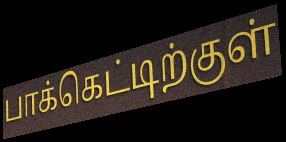
பாக்கெட்டிற்குள்